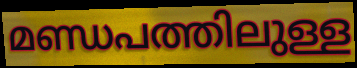
മണ്ഡപത്തിലുള്ള